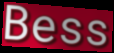
Bess